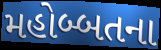
મહોબ્બતના